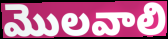
మొలవాలి